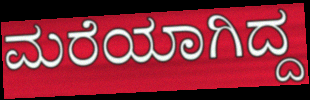
ಮರೆಯಾಗಿದ್ದ